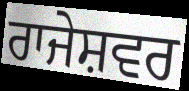
ਰਾਜੇਸ਼ਵਰ